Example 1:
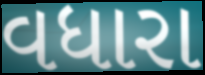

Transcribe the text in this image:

વધારા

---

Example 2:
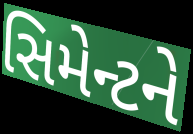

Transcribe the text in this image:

સિમેન્ટને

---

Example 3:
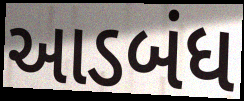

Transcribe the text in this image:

આડબંધ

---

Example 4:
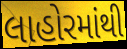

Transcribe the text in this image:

લાહોરમાંથી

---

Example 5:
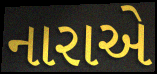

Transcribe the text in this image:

નારાએ